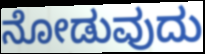
ನೋಡುವುದು